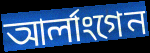
আৰ্লাংগেন